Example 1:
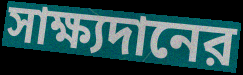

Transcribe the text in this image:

সাক্ষ্যদানের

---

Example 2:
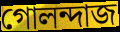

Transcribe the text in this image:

গোলন্দাজ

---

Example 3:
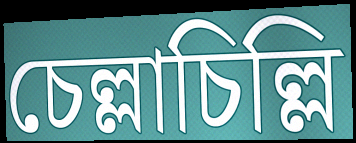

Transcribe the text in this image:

চেল্লাচিল্লি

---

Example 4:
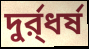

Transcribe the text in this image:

দুর্র্ধর্ষ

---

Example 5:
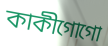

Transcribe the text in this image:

কাকীগোগো